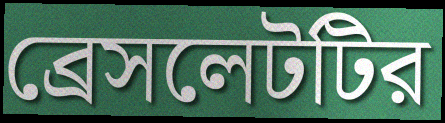
ব্রেসলেটটির